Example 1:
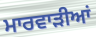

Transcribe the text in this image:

ਮਾਰਵਾੜੀਆਂ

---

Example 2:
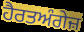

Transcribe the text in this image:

ਹੈਰਤਅੰਗੇਜ਼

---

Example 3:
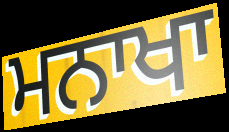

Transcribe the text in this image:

ਮਨਾਖਾ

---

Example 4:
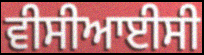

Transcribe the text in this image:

ਵੀਸੀਆਈਸੀ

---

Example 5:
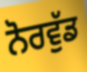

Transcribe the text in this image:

ਨੋਰਵੁੱਡ